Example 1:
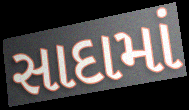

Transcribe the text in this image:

સાદામાં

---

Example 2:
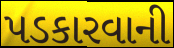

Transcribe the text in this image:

પડકારવાની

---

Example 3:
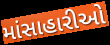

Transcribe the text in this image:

માંસાહારીઓ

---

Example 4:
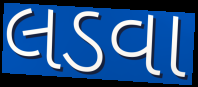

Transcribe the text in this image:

લડવા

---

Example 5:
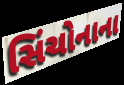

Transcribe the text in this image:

સિંચોનાના